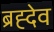
ब्रह्देव